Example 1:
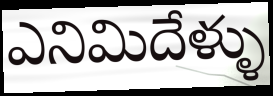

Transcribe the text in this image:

ఎనిమిదేళ్ళు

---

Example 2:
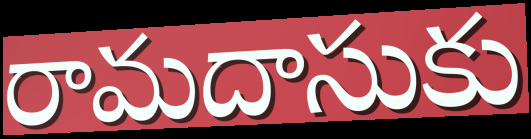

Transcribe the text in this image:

రామదాసుకు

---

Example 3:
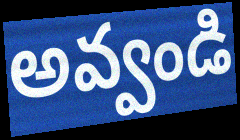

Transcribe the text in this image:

అవ్వండి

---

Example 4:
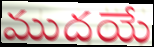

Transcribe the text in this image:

ముదయే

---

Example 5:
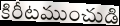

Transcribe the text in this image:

కిరీటముంచుడి